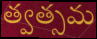
త్వత్సమ